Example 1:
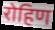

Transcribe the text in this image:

रोहिण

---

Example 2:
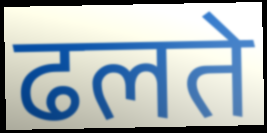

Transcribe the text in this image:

ढलते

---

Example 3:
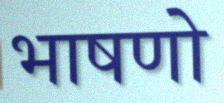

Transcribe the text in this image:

भाषणो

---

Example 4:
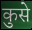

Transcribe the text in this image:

कुसे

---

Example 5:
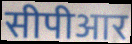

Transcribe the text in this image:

सीपीआर